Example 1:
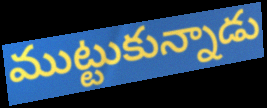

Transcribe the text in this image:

ముట్టుకున్నాడు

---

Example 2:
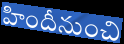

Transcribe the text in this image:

హిందీనుంచి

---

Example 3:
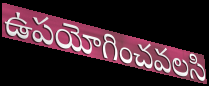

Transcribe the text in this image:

ఉపయోగించవలసి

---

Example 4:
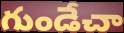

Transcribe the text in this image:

గుండేచా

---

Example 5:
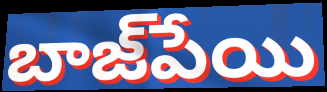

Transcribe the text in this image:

బాజ్‌పేయి